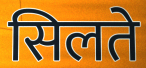
सिलते